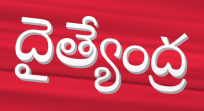
దైత్యేంద్ర